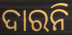
ଦାରନି